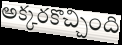
అక్కరకొచ్చింది